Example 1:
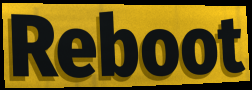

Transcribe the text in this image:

Reboot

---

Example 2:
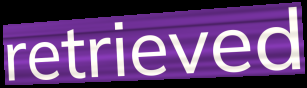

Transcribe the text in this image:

retrieved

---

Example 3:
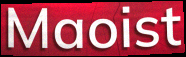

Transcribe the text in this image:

Maoist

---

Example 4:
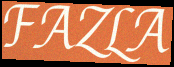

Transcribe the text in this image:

FAZLA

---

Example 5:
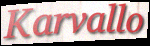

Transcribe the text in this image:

Karvallo